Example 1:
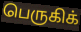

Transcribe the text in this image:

பெருகிக்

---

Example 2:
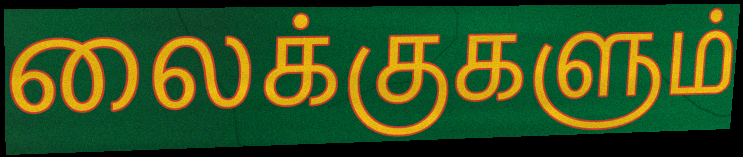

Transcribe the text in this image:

லைக்குகளும்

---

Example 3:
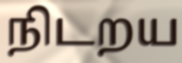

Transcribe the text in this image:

நிடறய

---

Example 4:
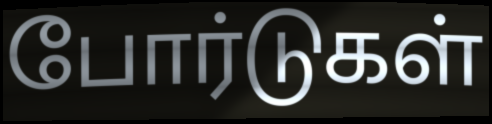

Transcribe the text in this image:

போர்டுகள்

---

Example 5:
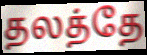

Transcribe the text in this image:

தலத்தே